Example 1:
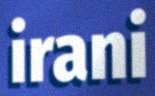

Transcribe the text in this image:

irani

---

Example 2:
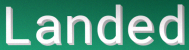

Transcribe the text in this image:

Landed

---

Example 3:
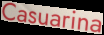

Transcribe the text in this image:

Casuarina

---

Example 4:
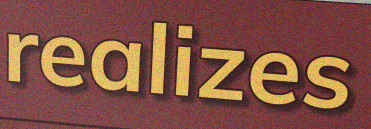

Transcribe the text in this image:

realizes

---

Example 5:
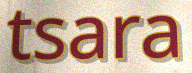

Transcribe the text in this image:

tsara